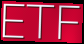
ETF